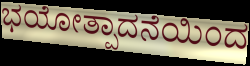
ಭಯೋತ್ಪಾದನೆಯಿಂದ